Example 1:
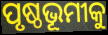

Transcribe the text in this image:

ପୃଷ୍ଠଭୂମୀକୁ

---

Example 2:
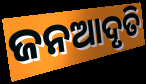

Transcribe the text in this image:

ଜନଆଦୃତି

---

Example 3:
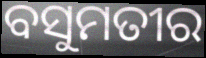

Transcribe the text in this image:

ବସୁମତୀର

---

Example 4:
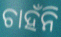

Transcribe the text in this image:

ଚାହଁନି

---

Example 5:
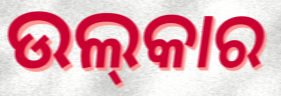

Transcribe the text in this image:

ଉଲ୍‌କାର